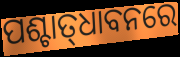
ପଶ୍ଚାତ୍‍ଧାବନରେ